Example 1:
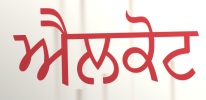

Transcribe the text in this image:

ਐਲਕੋਟ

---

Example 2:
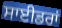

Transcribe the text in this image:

ਸਾਈਡਰਾਂ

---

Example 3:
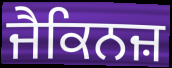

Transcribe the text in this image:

ਜੈਕਿਨਜ਼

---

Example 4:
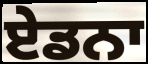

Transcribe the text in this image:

ਏਡਨਾ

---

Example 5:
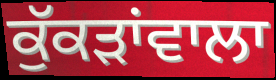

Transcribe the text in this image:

ਕੁੱਕੜਾਂਵਾਲਾ